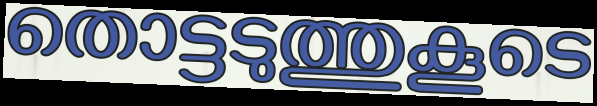
തൊട്ടടുത്തുകൂടെ